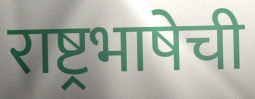
राष्ट्रभाषेची